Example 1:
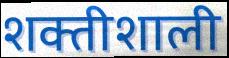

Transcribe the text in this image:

शक्‍तीशाली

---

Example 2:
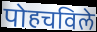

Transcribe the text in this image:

पोहचविले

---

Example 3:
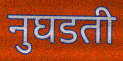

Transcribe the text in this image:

नुघडती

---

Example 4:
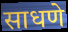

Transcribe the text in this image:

साधणे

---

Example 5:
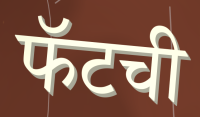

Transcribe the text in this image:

फॅटची